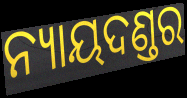
ନ୍ୟାୟଦଣ୍ଡର